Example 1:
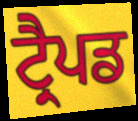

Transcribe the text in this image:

ਟ੍ਰੈਪਡ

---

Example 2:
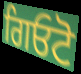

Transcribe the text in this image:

ਗਿਓਟੋ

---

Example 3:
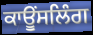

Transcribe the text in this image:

ਕਾਊਂਸਲਿੰਗ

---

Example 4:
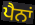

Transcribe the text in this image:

ਪੈਨਾਂ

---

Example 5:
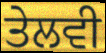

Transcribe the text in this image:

ਤੇਲਵੀ